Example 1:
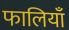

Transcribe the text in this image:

फालियाँ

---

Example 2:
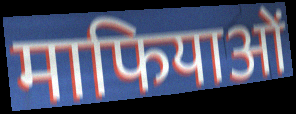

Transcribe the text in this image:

माफियाओं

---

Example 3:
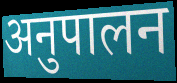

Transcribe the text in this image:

अनुपालन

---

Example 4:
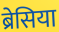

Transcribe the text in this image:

ब्रेसिया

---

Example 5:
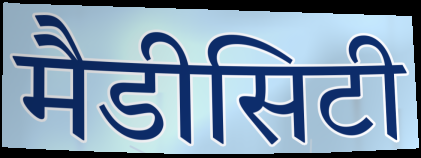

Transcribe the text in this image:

मैडीसिटी